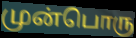
முன்பொரு